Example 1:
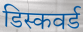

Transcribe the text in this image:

डिस्कवर्ड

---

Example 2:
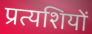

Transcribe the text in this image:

प्रत्यशियों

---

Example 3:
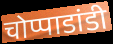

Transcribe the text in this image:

चोप्पाडांडी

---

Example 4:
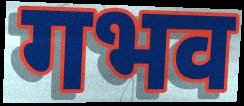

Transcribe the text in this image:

गभव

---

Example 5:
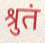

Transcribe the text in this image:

श्रुतं